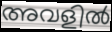
അവളിൽ